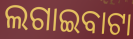
ଲଗାଇବାଟା